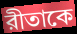
রীতাকে